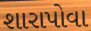
શારાપોવા